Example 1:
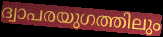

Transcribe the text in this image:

ദ്വാപരയുഗത്തിലും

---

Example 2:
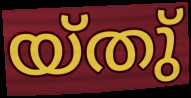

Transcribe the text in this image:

യ്തു്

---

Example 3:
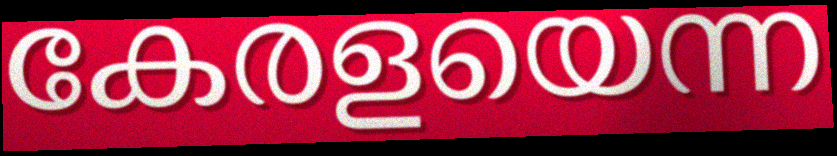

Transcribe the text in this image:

കേരളയെന്ന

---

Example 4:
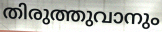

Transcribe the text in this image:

തിരുത്തുവാനും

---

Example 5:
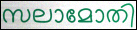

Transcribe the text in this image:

സലാമോതി